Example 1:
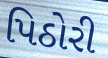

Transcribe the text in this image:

પિઠોરી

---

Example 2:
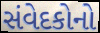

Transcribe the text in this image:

સંવેદકોનો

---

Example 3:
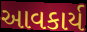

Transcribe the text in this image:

આવકાર્ય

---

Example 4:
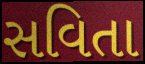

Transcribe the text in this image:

સવિતા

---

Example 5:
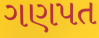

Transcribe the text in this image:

ગણપત